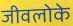
जीवलोके